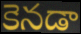
కెనడా